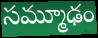
సమ్మూఢం